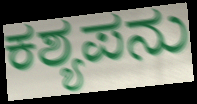
ಕಶ್ಯಪನು